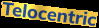
Telocentric